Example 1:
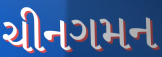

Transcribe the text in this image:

ચીનગમન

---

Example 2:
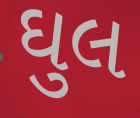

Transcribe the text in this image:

ઘુલ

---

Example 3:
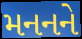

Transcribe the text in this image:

મનનને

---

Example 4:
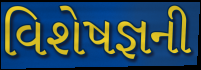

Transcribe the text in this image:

વિશેષજ્ઞની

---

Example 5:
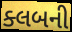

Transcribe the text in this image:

ક્લબની